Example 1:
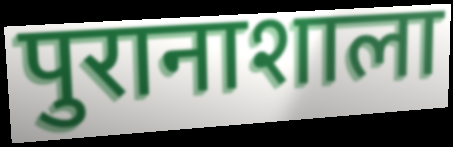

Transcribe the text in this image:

पुरानाशाला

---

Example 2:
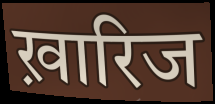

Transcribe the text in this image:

ख़ारिज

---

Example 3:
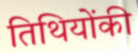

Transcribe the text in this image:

तिथियोंकी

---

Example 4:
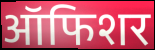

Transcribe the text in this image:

ऑफिशर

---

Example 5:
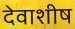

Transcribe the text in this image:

देवाशीष